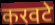
करवटे